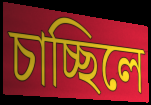
চাচ্ছিলে